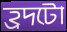
হ্ৰদটো